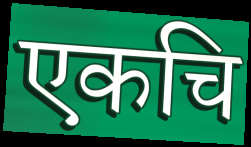
एकचि